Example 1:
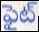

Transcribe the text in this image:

ఫైట్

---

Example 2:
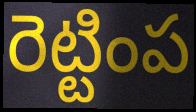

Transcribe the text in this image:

రెట్టింప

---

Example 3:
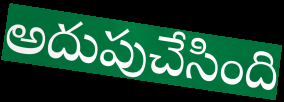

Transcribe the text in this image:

అదుపుచేసింది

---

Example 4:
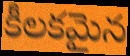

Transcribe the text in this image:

కీలకమైన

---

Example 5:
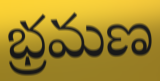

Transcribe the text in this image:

భ్రమణ